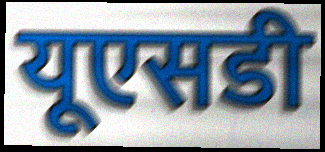
यूएसडी